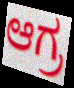
ಆಗ್ರ